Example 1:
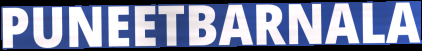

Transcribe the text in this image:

PUNEETBARNALA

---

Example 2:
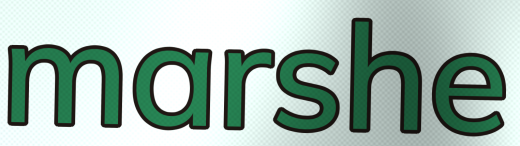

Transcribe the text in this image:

marshe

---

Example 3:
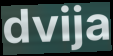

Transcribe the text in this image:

dvija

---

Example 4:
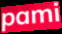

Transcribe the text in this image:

pami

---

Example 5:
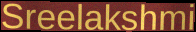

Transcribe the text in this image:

Sreelakshmi